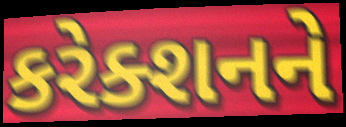
કરેક્શનને